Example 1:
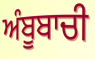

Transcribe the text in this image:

ਅੰਬੂਬਾਚੀ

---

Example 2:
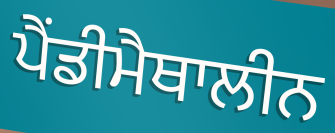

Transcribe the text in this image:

ਪੈਂਡੀਮੈਥਾਲੀਨ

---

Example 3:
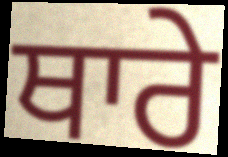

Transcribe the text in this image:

ਥਾਰੇ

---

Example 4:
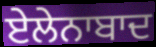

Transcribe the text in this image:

ਏਲੇਨਾਬਾਦ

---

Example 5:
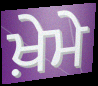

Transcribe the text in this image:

ਖ਼ੇਮੇ